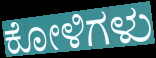
ಕೋಳಿಗಳು